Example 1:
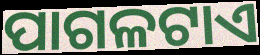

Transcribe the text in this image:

ପାଗଳଟାଏ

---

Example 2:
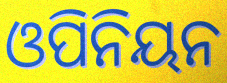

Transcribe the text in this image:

ଓପିନିୟନ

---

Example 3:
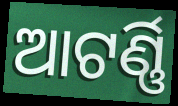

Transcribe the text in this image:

ଆଟର୍ଣ୍ଣି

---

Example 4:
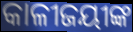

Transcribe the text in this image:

କାଳୀଜୟୀଙ୍କ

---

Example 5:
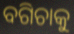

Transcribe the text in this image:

ବଗିଚାକୁ